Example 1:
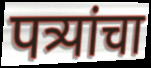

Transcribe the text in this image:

पत्र्यांचा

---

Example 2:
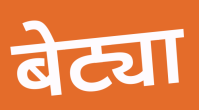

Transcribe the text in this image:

बेट्या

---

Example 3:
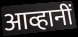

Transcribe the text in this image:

आव्हानीं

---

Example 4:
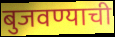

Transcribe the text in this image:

बुजवण्याची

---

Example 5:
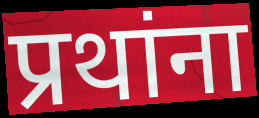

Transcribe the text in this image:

प्रथांना